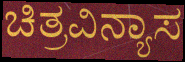
ಚಿತ್ರವಿನ್ಯಾಸ